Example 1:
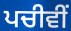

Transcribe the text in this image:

ਪਚੀਵੀਂ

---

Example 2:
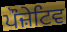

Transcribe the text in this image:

ਪੌਜ਼ੇਟਿਵ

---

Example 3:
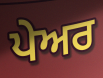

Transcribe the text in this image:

ਪੇਅਰ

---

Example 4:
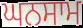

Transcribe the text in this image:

ਘਨਸਾਮ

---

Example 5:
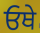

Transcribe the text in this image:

ਓਥੇ